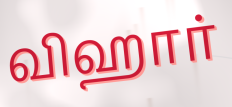
விஹார்